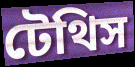
টেথিস